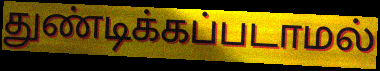
துண்டிக்கப்படாமல்